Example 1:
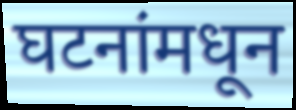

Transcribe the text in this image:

घटनांमधून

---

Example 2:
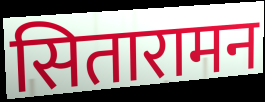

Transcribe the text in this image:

सितारामन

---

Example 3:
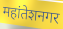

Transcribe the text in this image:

महांतेशनगर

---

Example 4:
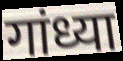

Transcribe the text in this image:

गांध्या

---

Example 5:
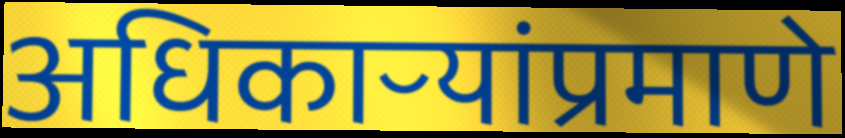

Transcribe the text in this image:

अधिकाऱ्यांप्रमाणे